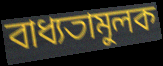
বাধ্যতামুলক